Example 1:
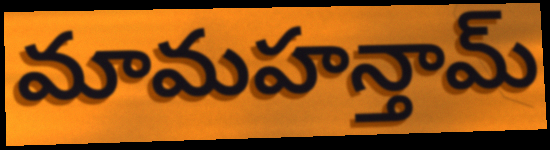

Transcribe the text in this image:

మామహన్తామ్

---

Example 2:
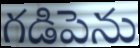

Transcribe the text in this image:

గడిపెను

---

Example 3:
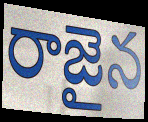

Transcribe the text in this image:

రాజైన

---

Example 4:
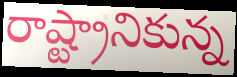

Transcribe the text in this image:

రాష్ట్రానికున్న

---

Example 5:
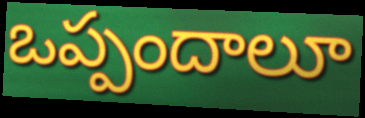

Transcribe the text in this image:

ఒప్పందాలూ